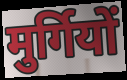
मुर्गियों